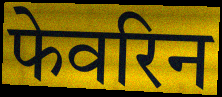
फेवरिन